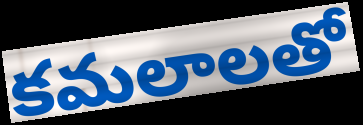
కమలాలతో